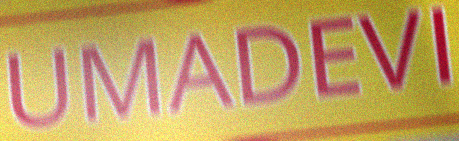
UMADEVI